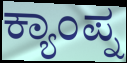
ಕ್ಯಾಂಪ್ನ